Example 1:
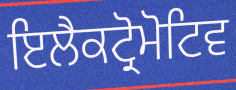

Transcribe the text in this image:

ਇਲੈਕਟ੍ਰੋਮੋਟਿਵ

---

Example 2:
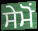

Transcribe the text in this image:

ਸੇਮੋਂ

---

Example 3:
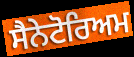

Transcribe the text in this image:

ਸੈਨੇਟੋਰਿਅਮ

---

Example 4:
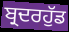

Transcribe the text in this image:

ਬ੍ਰਦਰਹੁੱਡ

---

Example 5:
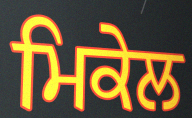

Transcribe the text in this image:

ਮਿਕੇਲ